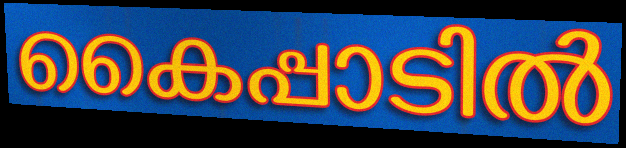
കൈപ്പാടിൽ